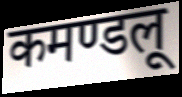
कमण्डलू